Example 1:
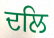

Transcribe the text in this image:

ਦਲਿ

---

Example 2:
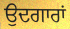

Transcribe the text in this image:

ਉਦਗਾਰਾਂ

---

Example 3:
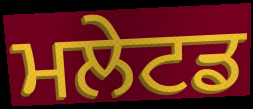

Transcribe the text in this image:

ਮਲੇਟਡ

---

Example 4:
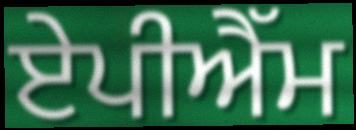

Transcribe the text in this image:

ਏਪੀਐੱਮ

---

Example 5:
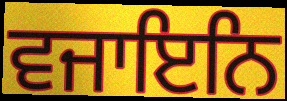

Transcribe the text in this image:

ਵਜਾਇਨਿ